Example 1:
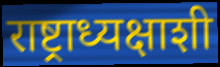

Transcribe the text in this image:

राष्ट्राध्यक्षाशी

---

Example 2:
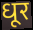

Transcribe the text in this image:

धूर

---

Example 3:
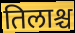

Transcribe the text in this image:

तिलाश्च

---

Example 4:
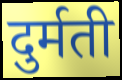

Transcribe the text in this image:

दुर्मती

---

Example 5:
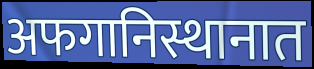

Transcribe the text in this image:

अफगानिस्थानात